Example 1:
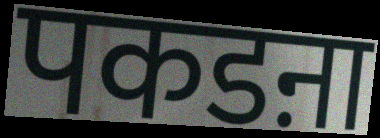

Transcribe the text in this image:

पकडऩा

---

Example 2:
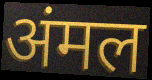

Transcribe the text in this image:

अंमल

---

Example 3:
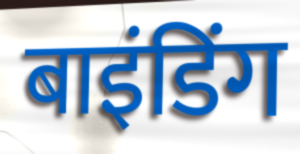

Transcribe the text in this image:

बाइंडिंग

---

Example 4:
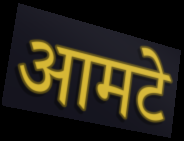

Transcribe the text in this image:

आमटे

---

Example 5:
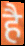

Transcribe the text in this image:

है